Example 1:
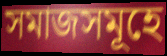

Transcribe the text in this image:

সমাজসমূহে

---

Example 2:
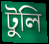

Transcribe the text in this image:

টুলি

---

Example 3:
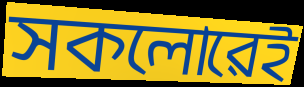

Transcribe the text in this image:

সকলোৱেই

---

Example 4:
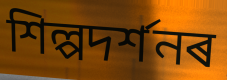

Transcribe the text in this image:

শিল্পদৰ্শনৰ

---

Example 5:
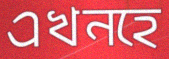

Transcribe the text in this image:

এখনহে